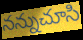
నన్నుచూసి